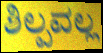
ಶಿಲ್ಪವಲ್ಲ